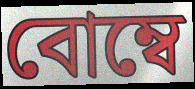
বোম্বে